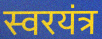
स्वरयंत्र